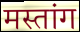
मस्तांग